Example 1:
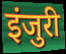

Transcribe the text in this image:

इंजुरी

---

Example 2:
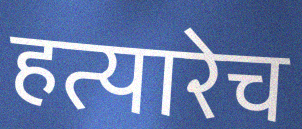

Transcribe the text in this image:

हत्यारेच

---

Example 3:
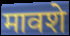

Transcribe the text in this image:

मावशे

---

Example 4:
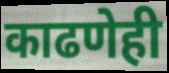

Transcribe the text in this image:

काढणेही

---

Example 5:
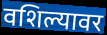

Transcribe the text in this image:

वशिल्यावर